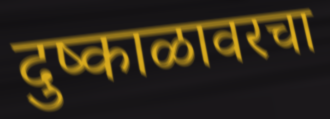
दुष्काळावरचा